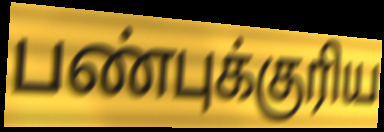
பண்புக்குரிய